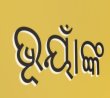
ଭୂୟାଁଙ୍କ